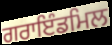
ਗਰਾਇੰਡਮਿਲ